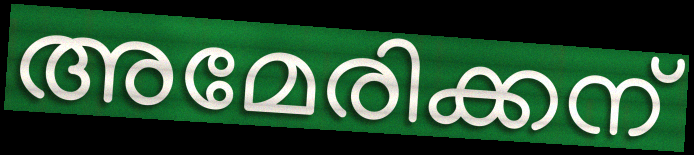
അമേരിക്കന്